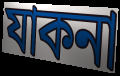
যাকনা